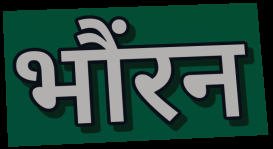
भौंरन